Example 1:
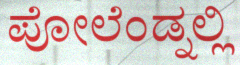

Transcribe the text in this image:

ಪೋಲೆಂಡ್ನಲ್ಲಿ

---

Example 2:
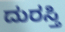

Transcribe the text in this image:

ದುರಸ್ತಿ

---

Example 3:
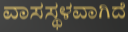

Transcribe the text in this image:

ವಾಸಸ್ಥಳವಾಗಿದೆ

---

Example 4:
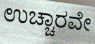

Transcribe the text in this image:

ಉಚ್ಚಾರವೇ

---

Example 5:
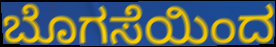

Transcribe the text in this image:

ಬೊಗಸೆಯಿಂದ